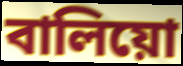
বালিয়ো